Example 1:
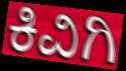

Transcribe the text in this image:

ಕಿವಿಗಿ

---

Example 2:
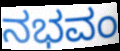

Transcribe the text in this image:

ನಭವಂ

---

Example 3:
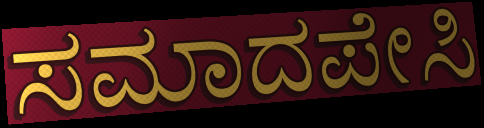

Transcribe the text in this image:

ಸಮಾದಪೇಸಿ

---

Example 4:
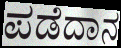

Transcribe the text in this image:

ಪಡೆದಾನ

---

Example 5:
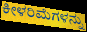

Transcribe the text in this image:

ಕೀಳರಿಮೆಗಳನ್ನು